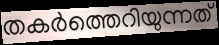
തകർത്തെറിയുന്നത്